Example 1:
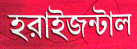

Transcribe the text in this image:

হরাইজন্টাল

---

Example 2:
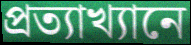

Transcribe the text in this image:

প্রত্যাখ্যানে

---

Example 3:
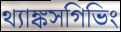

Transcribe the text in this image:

থ্যাঙ্কসগিভিং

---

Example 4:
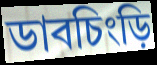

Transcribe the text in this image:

ডাবচিংড়ি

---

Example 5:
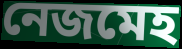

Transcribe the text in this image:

নেজমেহ